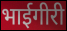
भाईगीरी